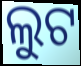
ଲୁଟ